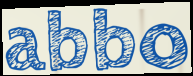
abbo